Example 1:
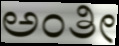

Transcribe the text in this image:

ಅಂತೀ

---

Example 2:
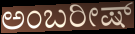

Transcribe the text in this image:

ಅಂಬರೀಷ್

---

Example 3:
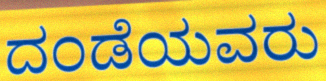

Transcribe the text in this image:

ದಂಡೆಯವರು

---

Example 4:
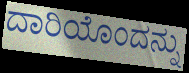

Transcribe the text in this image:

ದಾರಿಯೊಂದನ್ನು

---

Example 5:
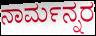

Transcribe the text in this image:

ನಾರ್ಮನ್ನರ